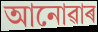
আনোৱাৰ